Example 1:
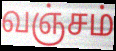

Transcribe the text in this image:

வஞ்சம்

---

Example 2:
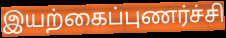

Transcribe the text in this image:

இயற்கைப்புணர்ச்சி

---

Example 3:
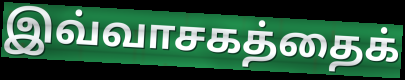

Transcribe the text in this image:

இவ்வாசகத்தைக்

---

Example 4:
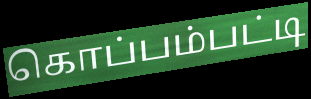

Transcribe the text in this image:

கொப்பம்பட்டி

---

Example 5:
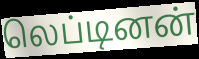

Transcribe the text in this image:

லெப்டினன்